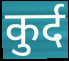
कुर्द